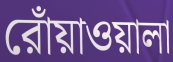
রোঁয়াওয়ালা